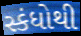
સ્કંધોથી